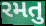
રમતુ